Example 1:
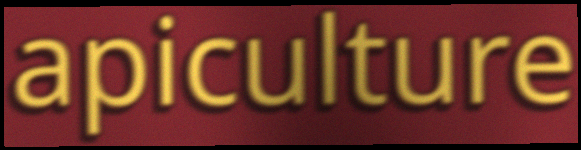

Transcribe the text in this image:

apiculture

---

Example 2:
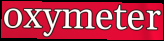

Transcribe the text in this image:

oxymeter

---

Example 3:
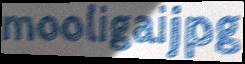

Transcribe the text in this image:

mooligaijpg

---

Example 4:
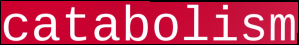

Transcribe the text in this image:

catabolism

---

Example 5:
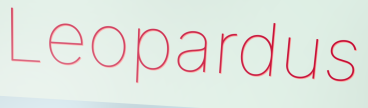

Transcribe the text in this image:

Leopardus